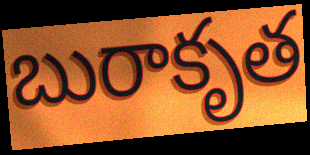
బురాకృత